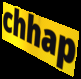
chhap